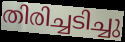
തിരിച്ചടിച്ചു